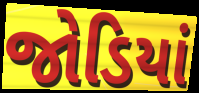
જોડિયાં